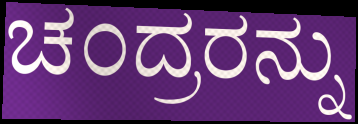
ಚಂದ್ರರನ್ನು